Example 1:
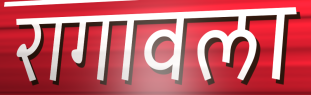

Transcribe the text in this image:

रागावला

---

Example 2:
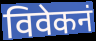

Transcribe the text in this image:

विवेकनं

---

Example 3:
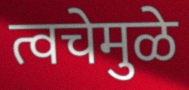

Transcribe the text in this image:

त्वचेमुळे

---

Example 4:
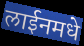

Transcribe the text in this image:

लाईनमधे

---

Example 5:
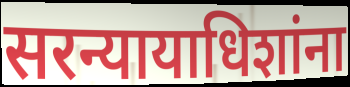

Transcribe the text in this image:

सरन्यायाधिशांना